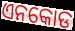
ଏନକୋଡ